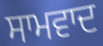
ਸਾਮਵਾਦ